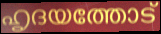
ഹൃദയത്തോട്